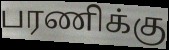
பரணிக்கு